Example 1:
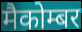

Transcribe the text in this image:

मैकोम्बर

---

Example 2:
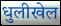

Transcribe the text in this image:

धुलीखेल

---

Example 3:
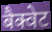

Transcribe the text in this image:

बैक्वेट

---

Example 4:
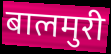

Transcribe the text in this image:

बालमुरी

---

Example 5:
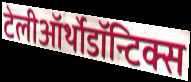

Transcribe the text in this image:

टेलीऑर्थोडॉन्टिक्स